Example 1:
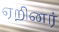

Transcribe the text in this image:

ஏறினர்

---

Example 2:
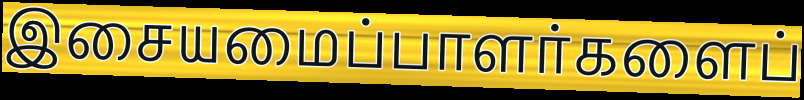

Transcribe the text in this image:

இசையமைப்பாளர்களைப்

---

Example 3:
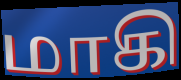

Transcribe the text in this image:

மாகி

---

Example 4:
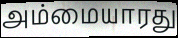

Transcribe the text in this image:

அம்மையாரது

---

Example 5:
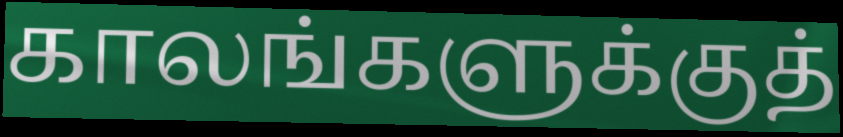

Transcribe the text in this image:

காலங்களுக்குத்